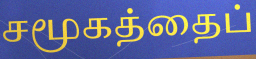
சமூகத்தைப்